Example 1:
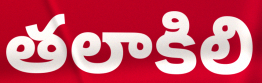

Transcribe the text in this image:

తలాకిలి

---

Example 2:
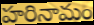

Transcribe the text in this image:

హరినామం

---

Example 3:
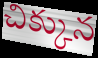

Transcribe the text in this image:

చిక్కున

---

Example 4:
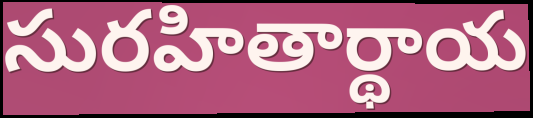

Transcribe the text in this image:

సురహితార్థాయ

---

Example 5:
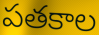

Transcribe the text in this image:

పతకాల